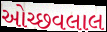
ઓચ્છવલાલ